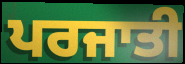
ਪਰਜਾਤੀ